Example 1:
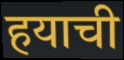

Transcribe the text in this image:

हयाची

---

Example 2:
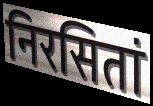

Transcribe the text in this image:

निरसितां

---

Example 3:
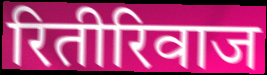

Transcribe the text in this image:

रितीरिवाज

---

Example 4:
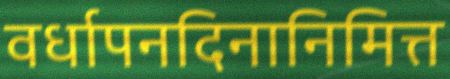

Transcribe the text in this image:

वर्धापनदिनानिमित्त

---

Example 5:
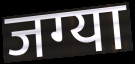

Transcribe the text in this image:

जग्या